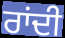
ਰਾਂਦੀ